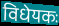
विधेयकः